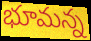
భూమన్న